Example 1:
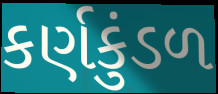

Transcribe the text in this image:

કર્ણકુંડળ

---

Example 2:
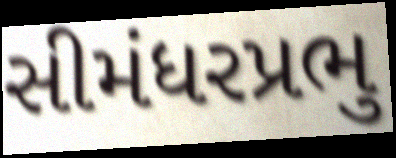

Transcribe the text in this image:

સીમંધરપ્રભુ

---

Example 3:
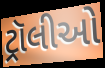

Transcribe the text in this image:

ટ્રૉલીઓ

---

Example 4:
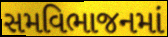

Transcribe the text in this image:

સમવિભાજનમાં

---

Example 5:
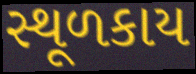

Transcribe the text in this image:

સ્થૂળકાય